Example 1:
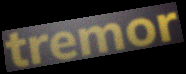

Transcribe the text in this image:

tremor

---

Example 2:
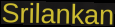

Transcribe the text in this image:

Srilankan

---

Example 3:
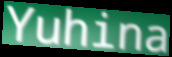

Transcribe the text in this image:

Yuhina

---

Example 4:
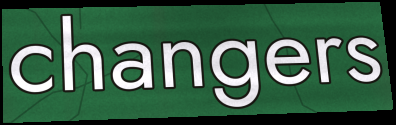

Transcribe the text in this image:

changers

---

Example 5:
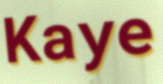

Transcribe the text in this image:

Kaye